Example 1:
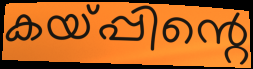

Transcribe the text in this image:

കയ്പ്പിന്റെ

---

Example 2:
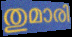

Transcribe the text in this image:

തുമാരി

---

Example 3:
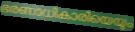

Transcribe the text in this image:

ഭരണാധികാരിയെയും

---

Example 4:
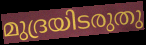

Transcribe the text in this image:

മുദ്രയിടരുതു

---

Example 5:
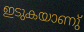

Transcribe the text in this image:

ഇടുകയാണു്